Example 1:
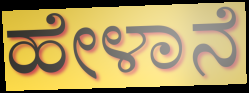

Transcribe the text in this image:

ಹೇಳಾನೆ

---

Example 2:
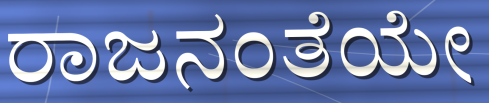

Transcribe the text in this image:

ರಾಜನಂತೆಯೇ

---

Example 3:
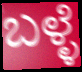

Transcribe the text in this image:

ಬಳ್ಳೆ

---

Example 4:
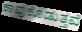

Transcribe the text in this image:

ಕಾವುಕೊಡುತ್ತವೆ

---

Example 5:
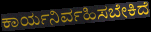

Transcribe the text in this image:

ಕಾರ್ಯನಿರ್ವಹಿಸಬೇಕಿದೆ